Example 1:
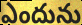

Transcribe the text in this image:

ఎందును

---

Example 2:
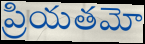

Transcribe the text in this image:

ప్రియతమో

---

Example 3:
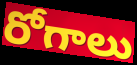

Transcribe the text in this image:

రోగాలు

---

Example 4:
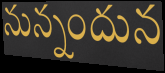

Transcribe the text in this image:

నున్నందున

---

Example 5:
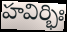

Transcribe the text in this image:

హవిర్భిః